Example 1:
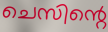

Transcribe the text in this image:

ചെസിന്റെ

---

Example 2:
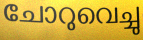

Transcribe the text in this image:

ചോറുവെച്ചു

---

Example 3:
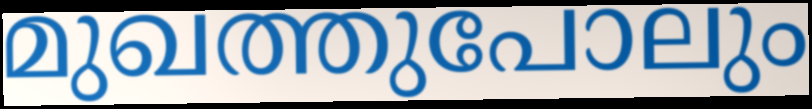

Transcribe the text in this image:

മുഖത്തുപോലും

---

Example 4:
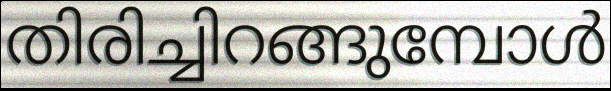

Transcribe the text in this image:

തിരിച്ചിറങ്ങുമ്പോൾ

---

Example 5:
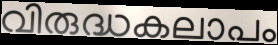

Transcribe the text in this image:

വിരുദ്ധകലാപം